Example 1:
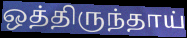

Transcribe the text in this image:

ஒத்திருந்தாய்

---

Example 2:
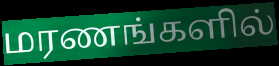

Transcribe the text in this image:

மரணங்களில்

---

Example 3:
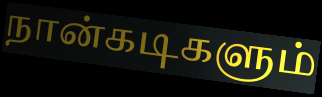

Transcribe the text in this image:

நான்கடிகளும்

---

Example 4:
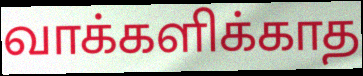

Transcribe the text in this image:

வாக்களிக்காத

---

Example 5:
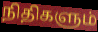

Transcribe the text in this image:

நிதிகளும்